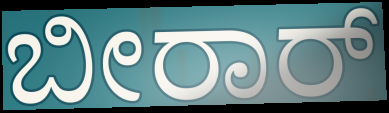
ಬೀರಾರ್